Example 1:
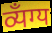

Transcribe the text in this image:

व्यँग्य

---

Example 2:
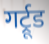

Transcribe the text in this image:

गर्ट्रूड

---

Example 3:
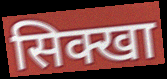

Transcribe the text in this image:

सिक्खा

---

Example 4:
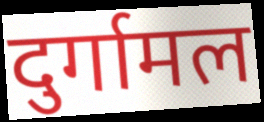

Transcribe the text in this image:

दुर्गामल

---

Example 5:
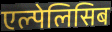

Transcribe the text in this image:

एल्पेलिसिब